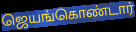
ஜெயங்கொண்டார்